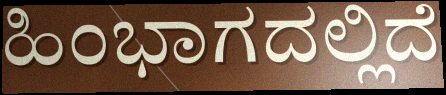
ಹಿಂಭಾಗದಲ್ಲಿದೆ